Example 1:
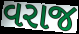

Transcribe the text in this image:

વરાજ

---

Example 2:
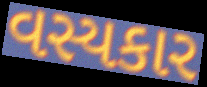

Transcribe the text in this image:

વસ્યકાર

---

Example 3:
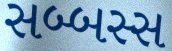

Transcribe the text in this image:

સબ્બસ્સ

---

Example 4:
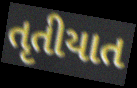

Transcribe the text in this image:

તૃતીયાત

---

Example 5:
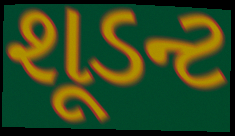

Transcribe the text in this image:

શૂડન્ટ